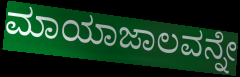
ಮಾಯಾಜಾಲವನ್ನೇ